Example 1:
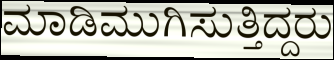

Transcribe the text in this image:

ಮಾಡಿಮುಗಿಸುತ್ತಿದ್ದರು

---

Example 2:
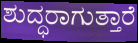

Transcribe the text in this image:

ಶುದ್ಧರಾಗುತ್ತಾರೆ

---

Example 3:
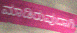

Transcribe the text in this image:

ಮಾಡಿರುವುದಾಗಿ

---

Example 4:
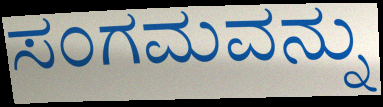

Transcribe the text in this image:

ಸಂಗಮವನ್ನು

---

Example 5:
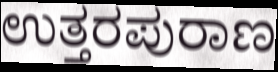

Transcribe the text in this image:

ಉತ್ತರಪುರಾಣ